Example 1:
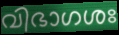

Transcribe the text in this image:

വിഭാഗശഃ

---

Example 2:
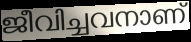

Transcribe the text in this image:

ജീവിച്ചവനാണ്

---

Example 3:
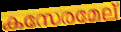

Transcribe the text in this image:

കസേരമേല്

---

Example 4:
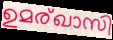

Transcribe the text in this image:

ഉമര്ഖാസി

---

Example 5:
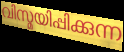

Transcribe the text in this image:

വിസ്മയിപ്പിക്കുന്ന